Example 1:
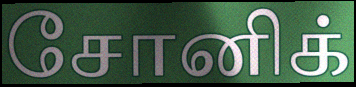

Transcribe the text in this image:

சோனிக்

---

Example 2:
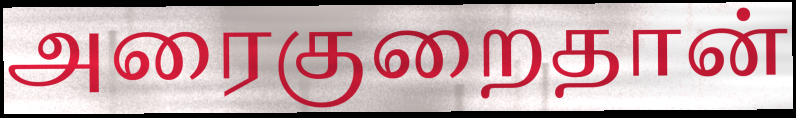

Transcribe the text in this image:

அரைகுறைதான்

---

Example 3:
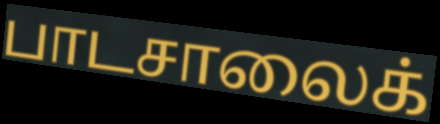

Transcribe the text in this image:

பாடசாலைக்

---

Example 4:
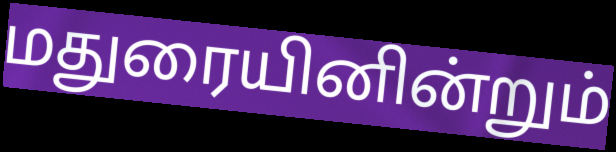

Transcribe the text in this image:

மதுரையினின்றும்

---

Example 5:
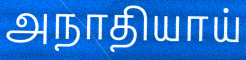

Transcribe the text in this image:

அநாதியாய்